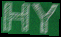
HY